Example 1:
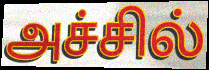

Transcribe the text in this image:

அச்சில்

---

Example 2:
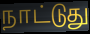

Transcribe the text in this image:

நாட்டுது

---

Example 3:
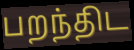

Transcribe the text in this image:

பறந்திட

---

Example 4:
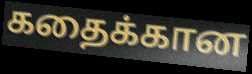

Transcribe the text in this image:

கதைக்கான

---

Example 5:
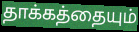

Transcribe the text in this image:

தாக்கத்தையும்